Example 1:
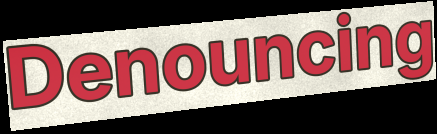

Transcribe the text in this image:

Denouncing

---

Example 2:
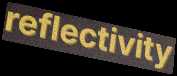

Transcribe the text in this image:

reflectivity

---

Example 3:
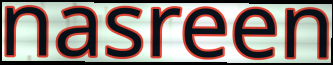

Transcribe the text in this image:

nasreen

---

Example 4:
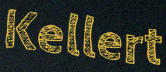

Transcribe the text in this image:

Kellert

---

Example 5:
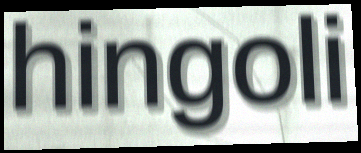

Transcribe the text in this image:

hingoli